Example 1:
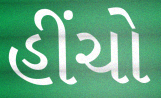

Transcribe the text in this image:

હીંચો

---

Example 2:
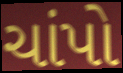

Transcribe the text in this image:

ચાંપો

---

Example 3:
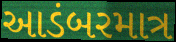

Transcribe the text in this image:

આડંબરમાત્ર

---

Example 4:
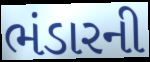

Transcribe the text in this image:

ભંડારની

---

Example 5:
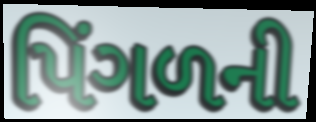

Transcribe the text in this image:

પિંગળની